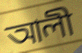
আলী